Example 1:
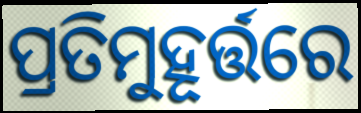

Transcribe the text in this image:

ପ୍ରତିମୁହୂର୍ତ୍ତରେ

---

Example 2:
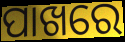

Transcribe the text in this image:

ପାଖରେ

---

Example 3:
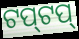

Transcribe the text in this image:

ଟପ୍‌ଟପ୍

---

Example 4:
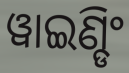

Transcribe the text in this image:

ୱାଇଣ୍ଡିଂ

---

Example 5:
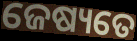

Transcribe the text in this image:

ଜେଷ୍ୟତେ